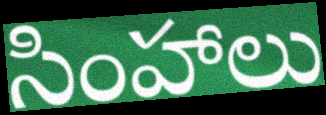
సింహాలు